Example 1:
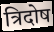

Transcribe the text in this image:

त्रिदोष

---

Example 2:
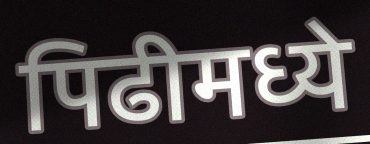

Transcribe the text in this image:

पिढीमध्ये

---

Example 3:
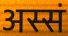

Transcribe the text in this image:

अस्सं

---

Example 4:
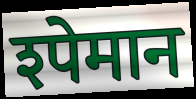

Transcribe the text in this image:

श्पेमान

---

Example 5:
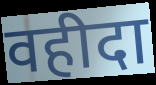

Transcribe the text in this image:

वहीदा